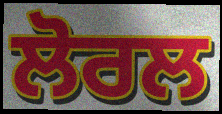
ਲੋਰਲ